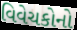
વિવેચકોનો